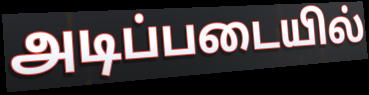
அடிப்படையில்